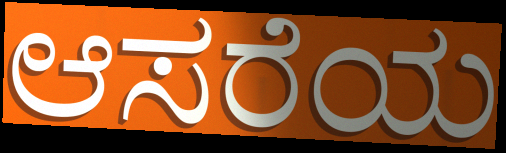
ಆಸರೆಯ